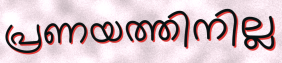
പ്രണയത്തിനില്ല